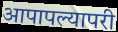
आपापल्यापरी